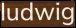
ludwig